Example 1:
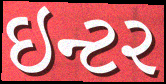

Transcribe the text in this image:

ઇન્ટર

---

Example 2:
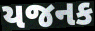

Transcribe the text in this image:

યજનક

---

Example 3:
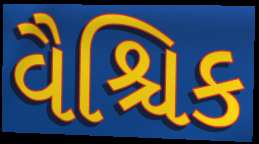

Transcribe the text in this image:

વૈશ્ચિક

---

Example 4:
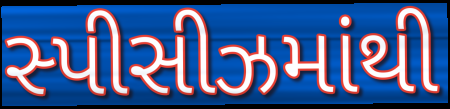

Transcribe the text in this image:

સ્પીસીઝમાંથી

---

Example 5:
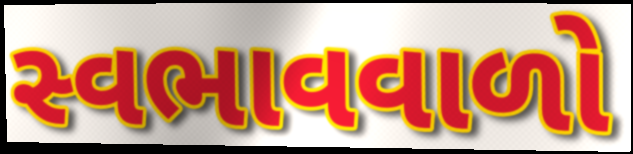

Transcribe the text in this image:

સ્વભાવવાળો